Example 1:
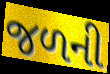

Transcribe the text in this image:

જળની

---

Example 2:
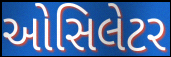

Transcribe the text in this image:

ઓસિલેટર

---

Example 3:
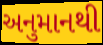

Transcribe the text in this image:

અનુમાનથી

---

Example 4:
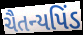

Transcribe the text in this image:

ચૈતન્યપિંડ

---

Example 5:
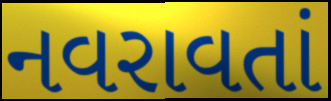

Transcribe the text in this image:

નવરાવતાં